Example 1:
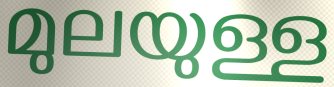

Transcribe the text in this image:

മുലയുള്ള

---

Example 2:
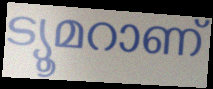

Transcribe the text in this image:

ട്യൂമറാണ്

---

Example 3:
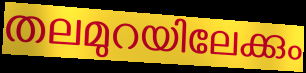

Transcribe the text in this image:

തലമുറയിലേക്കും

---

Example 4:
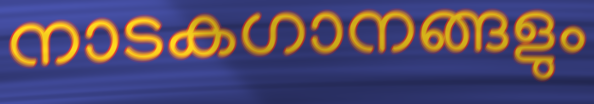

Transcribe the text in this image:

നാടകഗാനങ്ങളും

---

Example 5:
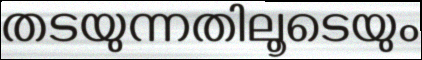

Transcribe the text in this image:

തടയുന്നതിലൂടെയും